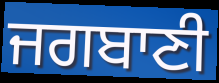
ਜਗਬਾਣੀ